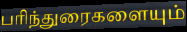
பரிந்துரைகளையும்